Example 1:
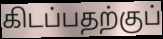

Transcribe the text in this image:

கிடப்பதற்குப்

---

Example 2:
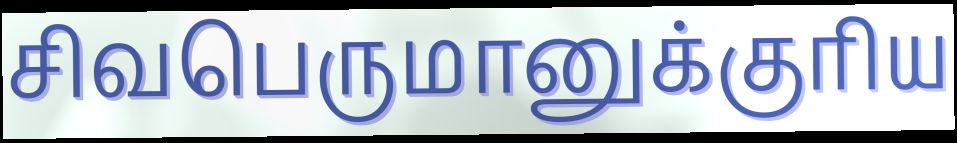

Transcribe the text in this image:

சிவபெருமானுக்குரிய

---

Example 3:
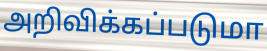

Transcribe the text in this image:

அறிவிக்கப்படுமா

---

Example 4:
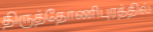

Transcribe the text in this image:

திருத்தோணிபுரத்தில்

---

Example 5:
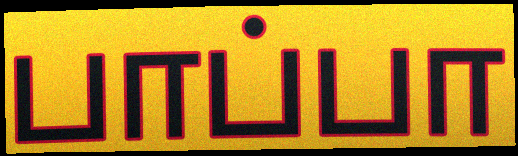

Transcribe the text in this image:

பாப்பா